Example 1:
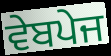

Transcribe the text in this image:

ਵੇਬਪੇਜ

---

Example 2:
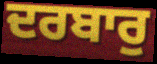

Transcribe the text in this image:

ਦਰਬਾਰੁ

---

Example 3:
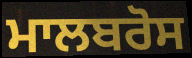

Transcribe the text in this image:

ਮਾਲਬਰੋਸ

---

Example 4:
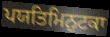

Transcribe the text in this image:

ਪਯਤਿਮਿਨੁਟਕਾ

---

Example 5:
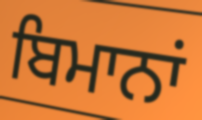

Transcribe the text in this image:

ਬਿਮਾਨਾਂ